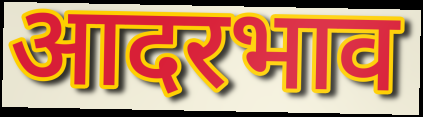
आदरभाव